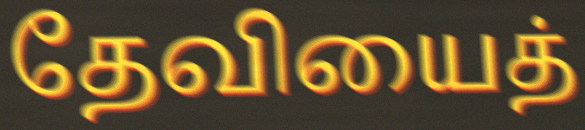
தேவியைத்